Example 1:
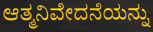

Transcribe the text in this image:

ಆತ್ಮನಿವೇದನೆಯನ್ನು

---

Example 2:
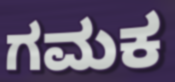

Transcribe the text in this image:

ಗಮಕ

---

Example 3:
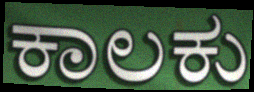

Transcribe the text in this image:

ಕಾಲಕು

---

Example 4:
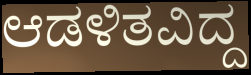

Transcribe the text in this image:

ಆಡಳಿತವಿದ್ದ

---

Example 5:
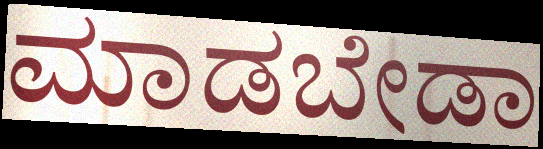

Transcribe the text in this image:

ಮಾಡಬೇಡಾ